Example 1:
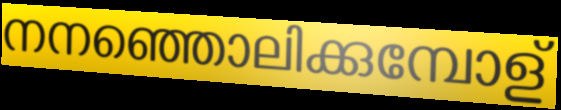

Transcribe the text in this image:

നനഞ്ഞൊലിക്കുമ്പോള്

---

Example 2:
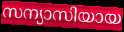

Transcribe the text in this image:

സന്യാസിയായ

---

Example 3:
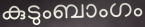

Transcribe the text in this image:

കുടുംബാംഗം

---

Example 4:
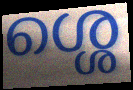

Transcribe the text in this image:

ശ്ശെ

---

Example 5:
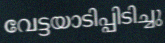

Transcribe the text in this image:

വേട്ടയാടിപ്പിടിച്ചു